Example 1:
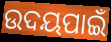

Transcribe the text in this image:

ଉଦୟପାଇଁ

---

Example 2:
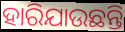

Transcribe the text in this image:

ହାରିଯାଉଛନ୍ତି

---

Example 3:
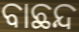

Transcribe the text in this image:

ବାଛନ୍ଦ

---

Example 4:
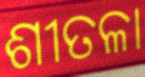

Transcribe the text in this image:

ଶୀତଳା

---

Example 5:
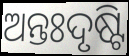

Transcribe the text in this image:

ଅନ୍ତଃଦୃଷ୍ଟି